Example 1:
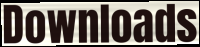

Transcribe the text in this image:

Downloads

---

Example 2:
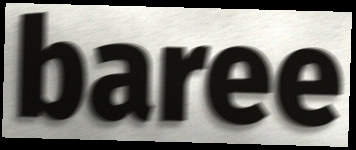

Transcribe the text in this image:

baree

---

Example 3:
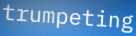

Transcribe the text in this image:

trumpeting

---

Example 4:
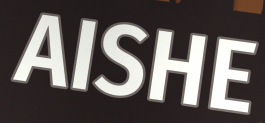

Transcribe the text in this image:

AISHE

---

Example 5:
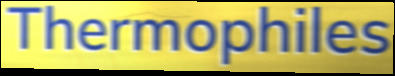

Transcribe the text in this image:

Thermophiles